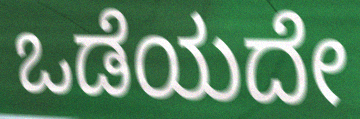
ಒಡೆಯದೇ